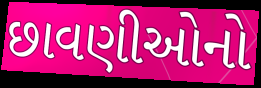
છાવણીઓનો